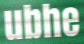
ubhe